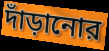
দাঁড়ানোর